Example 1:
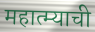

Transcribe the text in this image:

महात्म्याची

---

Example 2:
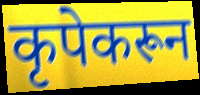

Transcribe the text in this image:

कृपेकरून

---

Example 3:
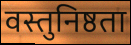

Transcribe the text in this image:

वस्तुनिष्ठता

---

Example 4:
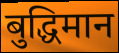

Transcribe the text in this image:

बुद्धिमान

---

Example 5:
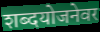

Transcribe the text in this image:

शब्दयोजनेवर